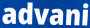
advani